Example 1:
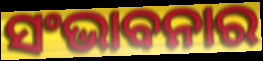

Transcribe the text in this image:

ସଂଭାବନାର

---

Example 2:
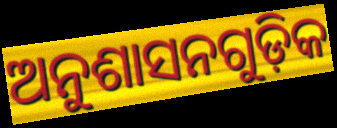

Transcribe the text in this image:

ଅନୁଶାସନଗୁଡ଼ିକ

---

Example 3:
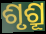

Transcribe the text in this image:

ଶୃଶ୍ରୂ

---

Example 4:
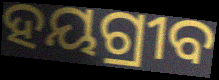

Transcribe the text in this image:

ହୟଗ୍ରୀବ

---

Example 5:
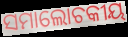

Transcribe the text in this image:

ସମାଲୋଚକୀୟ